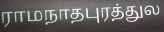
ராமநாதபுரத்துல